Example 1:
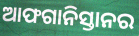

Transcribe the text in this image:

ଆଫଗାନିସ୍ତାନର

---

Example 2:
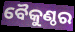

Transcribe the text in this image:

ବୈକୁଣ୍ଠର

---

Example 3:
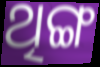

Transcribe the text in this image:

ଥିଙ୍ଗ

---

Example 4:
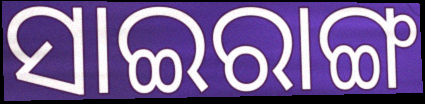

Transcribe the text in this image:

ସାଇରାଙ୍ଗ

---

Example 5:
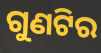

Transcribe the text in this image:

ଗୁଣଟିର